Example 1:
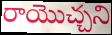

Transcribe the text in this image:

రాయొచ్చని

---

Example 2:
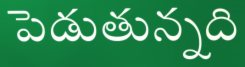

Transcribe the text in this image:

పెడుతున్నది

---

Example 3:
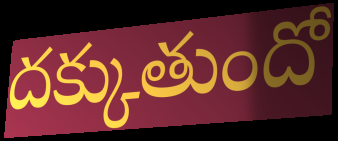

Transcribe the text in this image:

దక్కుతుందో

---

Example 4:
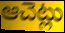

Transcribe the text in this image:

ఆచెట్లు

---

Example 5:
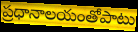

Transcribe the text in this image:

ప్రధానాలయంతోపాటు